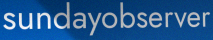
sundayobserver